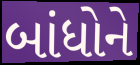
બાંધોને